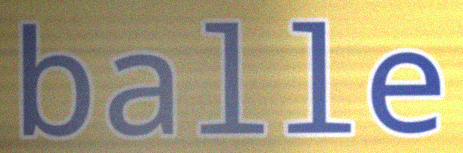
balle